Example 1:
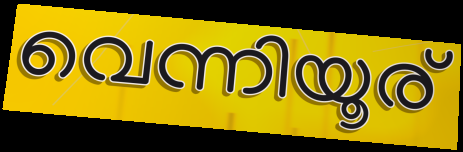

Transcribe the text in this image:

വെന്നിയൂര്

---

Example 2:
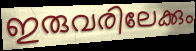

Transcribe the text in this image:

ഇരുവരിലേക്കും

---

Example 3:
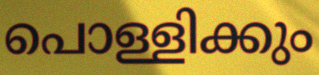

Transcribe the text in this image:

പൊള്ളിക്കും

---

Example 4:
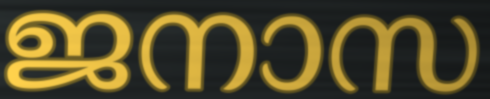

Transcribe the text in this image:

ജനാസ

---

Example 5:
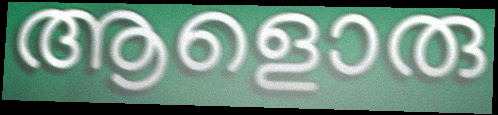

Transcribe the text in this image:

ആളൊരു